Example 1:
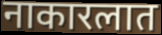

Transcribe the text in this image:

नाकारलात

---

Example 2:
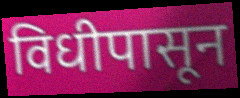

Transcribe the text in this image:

विधीपासून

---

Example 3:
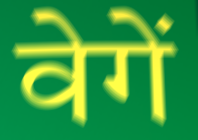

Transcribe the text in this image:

वेगें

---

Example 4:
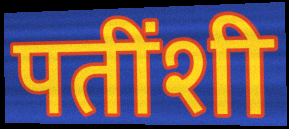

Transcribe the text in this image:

पतींशी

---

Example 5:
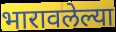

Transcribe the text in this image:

भारावलेल्या